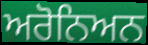
ਅਰੋਨਿਅਨ